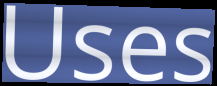
Uses